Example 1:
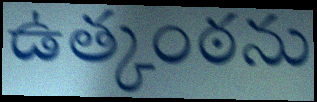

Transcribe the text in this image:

ఉత్కంఠను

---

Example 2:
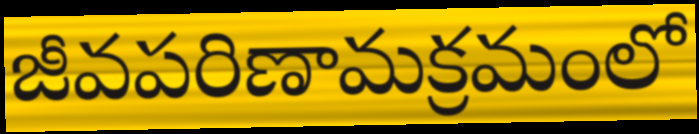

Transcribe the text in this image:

జీవపరిణామక్రమంలో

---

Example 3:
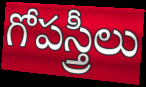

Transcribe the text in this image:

గోపస్త్రీలు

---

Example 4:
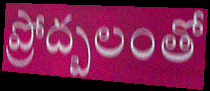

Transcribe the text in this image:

ప్రోద్బలంతో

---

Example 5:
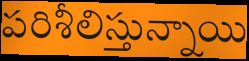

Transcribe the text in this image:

పరిశీలిస్తున్నాయి